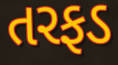
તરફડ